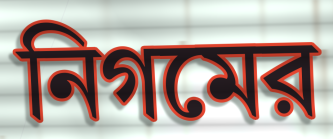
নিগমের